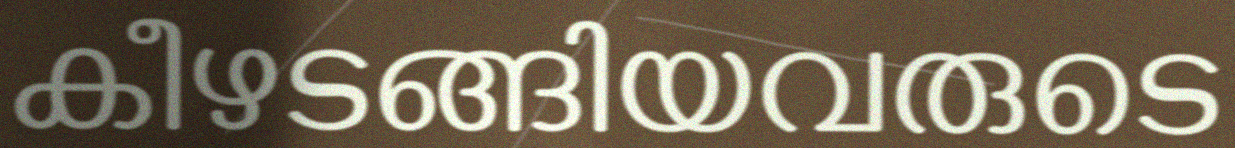
കീഴടങ്ങിയവരുടെ